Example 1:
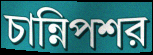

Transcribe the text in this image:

চান্নিপশর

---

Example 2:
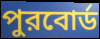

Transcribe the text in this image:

পুরবোর্ড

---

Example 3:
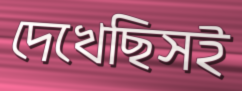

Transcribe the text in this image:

দেখেছিসই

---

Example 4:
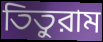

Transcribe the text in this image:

তিতুরাম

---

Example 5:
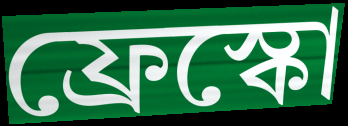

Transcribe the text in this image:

ফ্রেস্কো